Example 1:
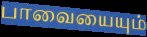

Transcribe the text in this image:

பாவையையும்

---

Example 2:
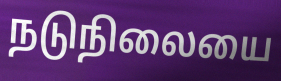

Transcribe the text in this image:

நடுநிலையை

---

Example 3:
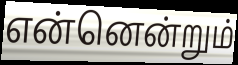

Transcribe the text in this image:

என்னென்றும்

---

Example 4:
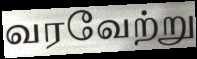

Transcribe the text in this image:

வரவேற்று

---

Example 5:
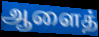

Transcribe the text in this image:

ஆளைத்